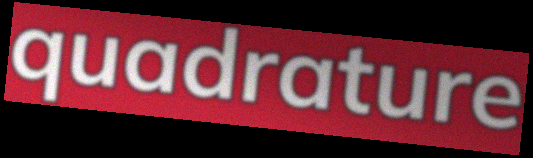
quadrature